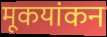
मूकयांकन